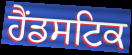
ਹੈਂਡਸਟਿਕ